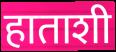
हाताशी